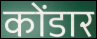
कोंडार